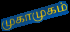
முகாமுகம்